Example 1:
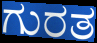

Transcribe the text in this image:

ಗುರತ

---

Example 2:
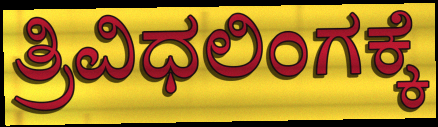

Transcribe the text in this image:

ತ್ರಿವಿಧಲಿಂಗಕ್ಕೆ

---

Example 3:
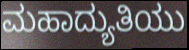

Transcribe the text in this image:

ಮಹಾದ್ಯುತಿಯು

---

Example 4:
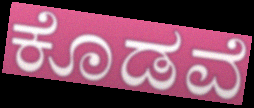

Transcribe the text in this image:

ಕೊಡವೆ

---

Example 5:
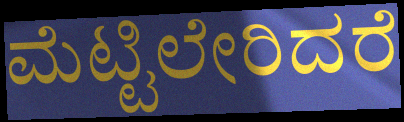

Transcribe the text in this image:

ಮೆಟ್ಟಿಲೇರಿದರೆ